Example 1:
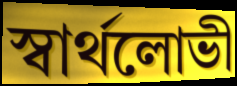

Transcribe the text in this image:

স্বার্থলোভী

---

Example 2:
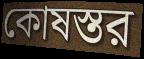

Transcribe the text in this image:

কোষস্তর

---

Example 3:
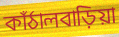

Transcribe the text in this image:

কাঁঠালবাড়িয়া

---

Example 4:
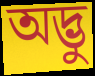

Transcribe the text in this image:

অদ্ভু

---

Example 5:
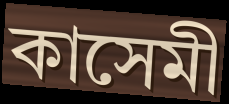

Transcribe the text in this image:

কাসেমী